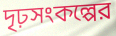
দৃঢ়সংকল্পের